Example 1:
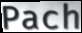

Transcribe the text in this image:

Pach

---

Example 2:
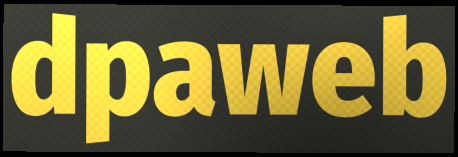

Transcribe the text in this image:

dpaweb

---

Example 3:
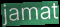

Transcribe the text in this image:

jamat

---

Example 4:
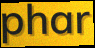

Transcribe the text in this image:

phar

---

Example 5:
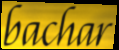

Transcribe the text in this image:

bachar